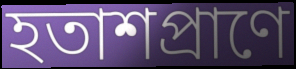
হতাশপ্রাণে